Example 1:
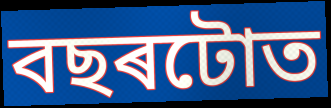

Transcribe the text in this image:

বছৰটোত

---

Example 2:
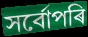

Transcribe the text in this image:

সৰ্বোপৰি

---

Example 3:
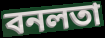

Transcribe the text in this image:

বনলতা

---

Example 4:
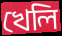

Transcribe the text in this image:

খেলি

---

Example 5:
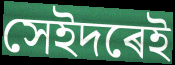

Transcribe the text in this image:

সেইদৰেই